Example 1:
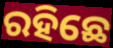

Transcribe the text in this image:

ରହିଛେ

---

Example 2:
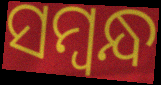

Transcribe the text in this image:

ସମ୍ୱନ୍ଧ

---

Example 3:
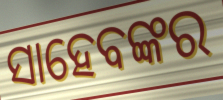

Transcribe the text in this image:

ସାହେବଙ୍କର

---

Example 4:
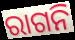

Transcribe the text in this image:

ରାଗନି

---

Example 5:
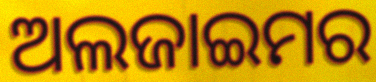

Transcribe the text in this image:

ଅଲଜାଇମର